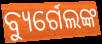
ବ୍ୟୁର୍ଗେଲଙ୍କ